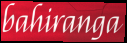
bahiranga